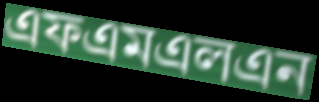
এফএমএলএন